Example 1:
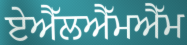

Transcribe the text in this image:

ਏਐੱਲਐੱਮਐੱਮ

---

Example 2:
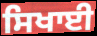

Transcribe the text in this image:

ਸਿਖਾਈ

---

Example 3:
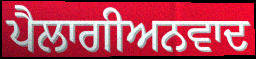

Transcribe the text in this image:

ਪੈਲਾਗੀਅਨਵਾਦ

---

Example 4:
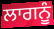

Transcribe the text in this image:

ਲਾਗਨੂੰ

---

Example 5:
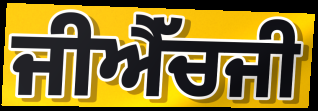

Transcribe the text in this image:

ਜੀਐੱਚਜੀ